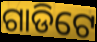
ଗାଡିଟେ